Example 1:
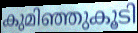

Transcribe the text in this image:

കുമിഞ്ഞുകൂടി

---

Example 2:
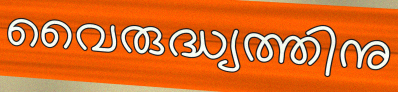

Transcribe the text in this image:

വൈരുദ്ധ്യത്തിനു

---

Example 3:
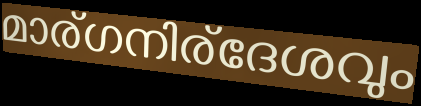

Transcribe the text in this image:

മാര്ഗനിര്ദേശവും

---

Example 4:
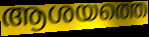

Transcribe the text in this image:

ആശയത്തെ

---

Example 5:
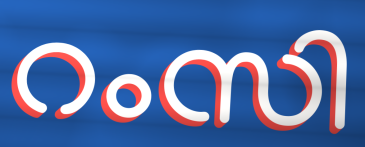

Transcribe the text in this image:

റംസി